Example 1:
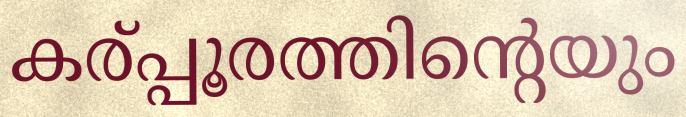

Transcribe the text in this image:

കര്പ്പൂരത്തിന്റെയും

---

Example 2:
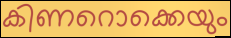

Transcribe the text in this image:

കിണറൊക്കെയും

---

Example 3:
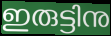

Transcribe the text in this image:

ഇരുട്ടിനു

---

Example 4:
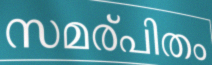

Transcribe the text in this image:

സമര്പിതം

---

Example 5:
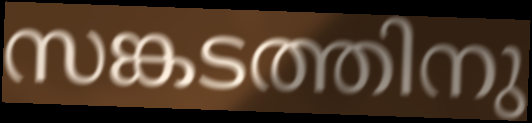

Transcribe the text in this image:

സങ്കടത്തിനു